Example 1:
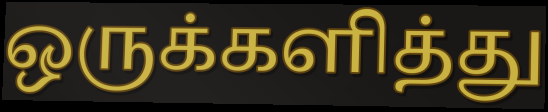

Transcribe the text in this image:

ஒருக்களித்து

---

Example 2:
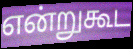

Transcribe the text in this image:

என்றுகூட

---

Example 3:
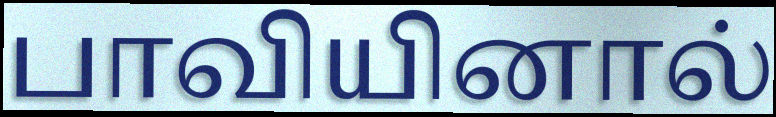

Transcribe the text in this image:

பாவியினால்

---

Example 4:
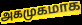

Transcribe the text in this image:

அகமுகமாக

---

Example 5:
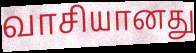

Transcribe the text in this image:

வாசியானது